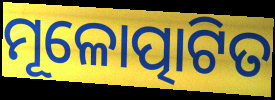
ମୂଳୋତ୍ପାଟିତ